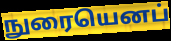
நுரையெனப்